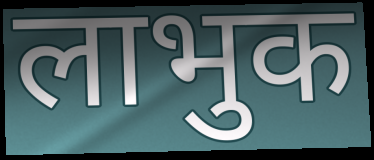
लाभुक